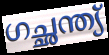
ഗച്ഛന്ത്യ്